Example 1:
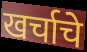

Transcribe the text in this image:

खर्चाचे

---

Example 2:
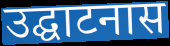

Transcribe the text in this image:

उद्घाटनास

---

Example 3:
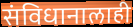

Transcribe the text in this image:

संविधानालाही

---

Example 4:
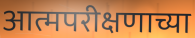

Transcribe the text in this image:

आत्मपरीक्षणाच्या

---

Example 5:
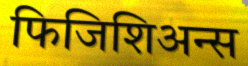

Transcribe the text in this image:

फिजिशिअन्स